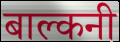
बाल्कनी